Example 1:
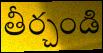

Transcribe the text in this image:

తీర్చండి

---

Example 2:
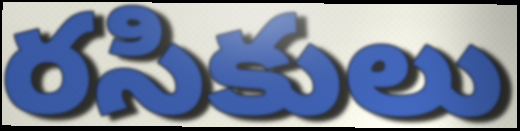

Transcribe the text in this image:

రసికులు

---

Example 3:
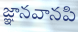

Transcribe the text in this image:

జ్ఞానవానపి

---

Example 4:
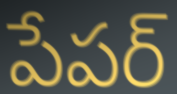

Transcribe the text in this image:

పేపర్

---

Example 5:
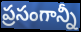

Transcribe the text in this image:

ప్రసంగాన్నీ